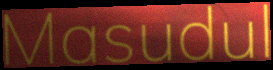
Masudul